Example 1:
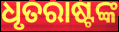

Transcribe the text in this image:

ଧୃତରାଷ୍ଟଙ୍କ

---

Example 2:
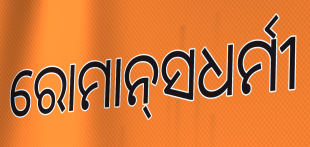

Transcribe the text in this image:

ରୋମାନ୍‌ସଧର୍ମୀ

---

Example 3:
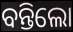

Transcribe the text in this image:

ବନ୍ତିଲୋ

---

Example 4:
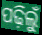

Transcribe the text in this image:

ପଢ଼ିଲୁଁ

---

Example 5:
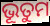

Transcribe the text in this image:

ଭୂତୁମ